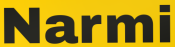
Narmi